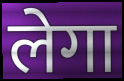
लेगा